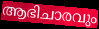
ആഭിചാരവും